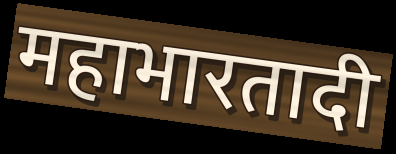
महाभारतादी